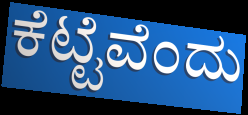
ಕೆಟ್ಟೆವೆಂದು